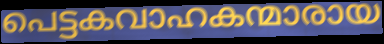
പെട്ടകവാഹകന്മാരായ